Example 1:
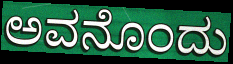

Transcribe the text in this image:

ಅವನೊಂದು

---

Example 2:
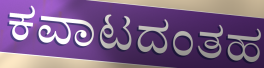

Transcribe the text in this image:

ಕವಾಟದಂತಹ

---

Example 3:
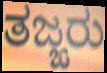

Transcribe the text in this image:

ತಜ್ಙರು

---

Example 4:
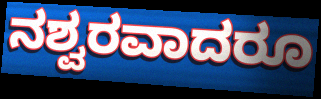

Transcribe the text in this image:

ನಶ್ವರವಾದರೂ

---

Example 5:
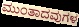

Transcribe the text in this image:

ಮುಂತಾದವುಗಳ